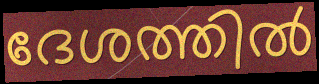
ദേശത്തിൽ